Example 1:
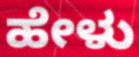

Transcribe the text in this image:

ಹೇಳು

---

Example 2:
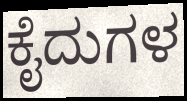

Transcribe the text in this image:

ಕೈದುಗಳ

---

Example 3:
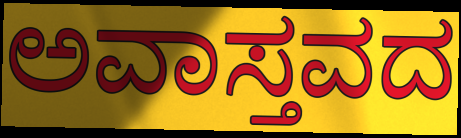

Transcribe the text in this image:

ಅವಾಸ್ತವದ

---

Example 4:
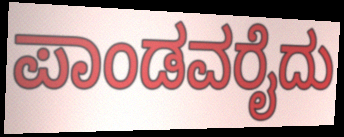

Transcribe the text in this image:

ಪಾಂಡವರೈದು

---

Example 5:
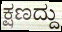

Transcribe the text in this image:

ಕ್ಷಣದ್ದು